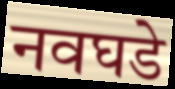
नवघडे